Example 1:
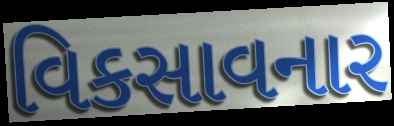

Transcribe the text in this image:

વિકસાવનાર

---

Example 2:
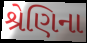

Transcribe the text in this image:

શ્રેણિના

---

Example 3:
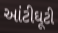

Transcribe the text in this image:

આંટીઘૂટી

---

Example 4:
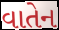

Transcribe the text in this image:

વાતેન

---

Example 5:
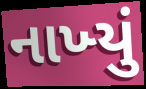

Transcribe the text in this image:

નાખ્‍યું